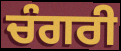
ਚੰਗਰੀ